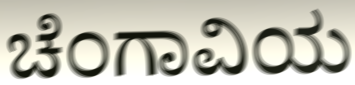
ಚೆಂಗಾವಿಯ